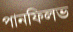
পানফিলভ